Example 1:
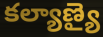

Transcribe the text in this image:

కల్యాణ్యై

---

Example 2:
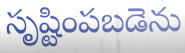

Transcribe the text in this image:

సృష్టింపబడెను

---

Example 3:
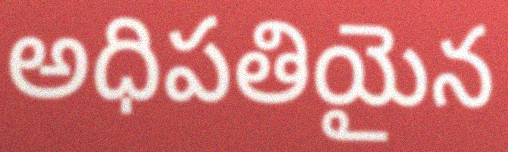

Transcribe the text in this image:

అధిపతియైన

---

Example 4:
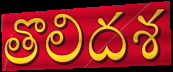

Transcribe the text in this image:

తొలిదశ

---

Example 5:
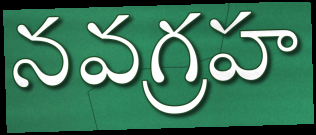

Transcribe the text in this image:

నవగ్రహ